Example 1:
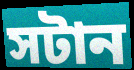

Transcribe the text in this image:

সটান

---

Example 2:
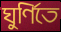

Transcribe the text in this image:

ঘুর্ণিতে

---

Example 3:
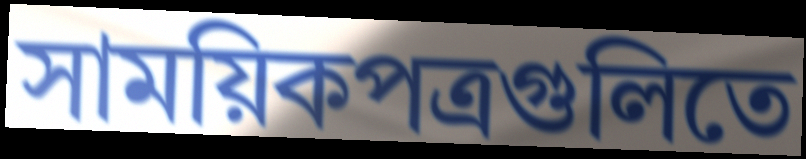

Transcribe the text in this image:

সাময়িকপত্রগুলিতে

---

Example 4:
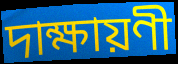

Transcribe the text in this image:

দাক্ষায়ণী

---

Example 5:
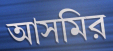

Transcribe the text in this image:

আসমির